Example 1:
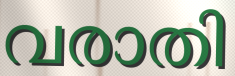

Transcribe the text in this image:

വരാതി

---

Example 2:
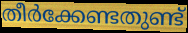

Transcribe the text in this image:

തീർക്കേണ്ടതുണ്ട്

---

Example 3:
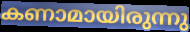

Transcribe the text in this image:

കണാമായിരുന്നു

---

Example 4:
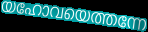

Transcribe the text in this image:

യഹോവയെത്തന്നേ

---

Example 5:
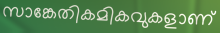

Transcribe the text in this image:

സാങ്കേതികമികവുകളാണ്